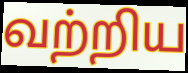
வற்றிய